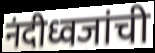
नंदीध्वजांची